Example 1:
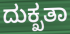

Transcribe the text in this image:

ದುಕ್ಖತಾ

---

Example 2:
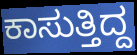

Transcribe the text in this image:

ಕಾಸುತ್ತಿದ್ದ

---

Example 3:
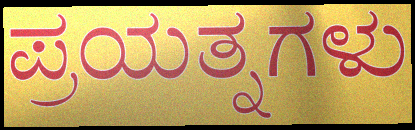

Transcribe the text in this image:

ಪ್ರಯತ್ನಗಳು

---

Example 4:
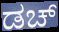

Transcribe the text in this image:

ಡಚ್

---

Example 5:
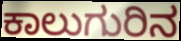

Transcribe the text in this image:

ಕಾಲುಗುರಿನ